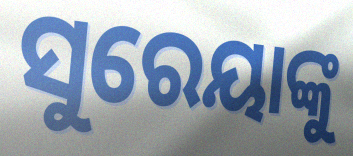
ସୁରେୟାଙ୍କୁ